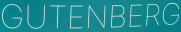
GUTENBERG